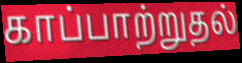
காப்பாற்றுதல்